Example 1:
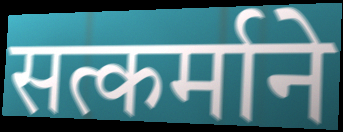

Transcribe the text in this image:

सत्कर्माने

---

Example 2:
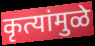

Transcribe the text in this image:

कृत्यांमुळे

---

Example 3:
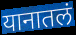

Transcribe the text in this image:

यानातलं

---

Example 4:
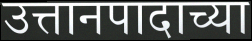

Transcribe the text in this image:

उत्तानपादाच्या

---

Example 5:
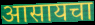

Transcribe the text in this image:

आसायचा